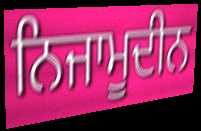
ਨਿਜਾਮੂਦੀਨ